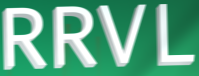
RRVL